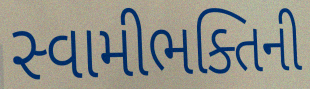
સ્વામીભક્તિની